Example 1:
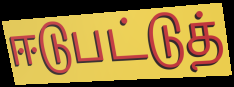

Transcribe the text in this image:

ஈடுபட்டுத்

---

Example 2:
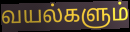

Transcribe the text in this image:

வயல்களும்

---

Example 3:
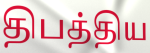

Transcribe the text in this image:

திபத்திய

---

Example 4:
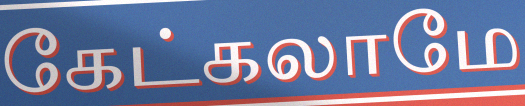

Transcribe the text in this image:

கேட்கலாமே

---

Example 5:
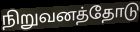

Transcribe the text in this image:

நிறுவனத்தோடு